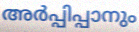
അർപ്പിപ്പാനും